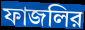
ফাজলির